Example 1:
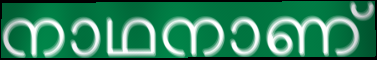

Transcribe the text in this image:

നാഥനാണ്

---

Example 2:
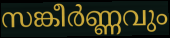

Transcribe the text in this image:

സങ്കീർണ്ണവും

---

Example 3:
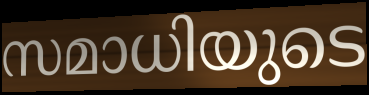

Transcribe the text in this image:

സമാധിയുടെ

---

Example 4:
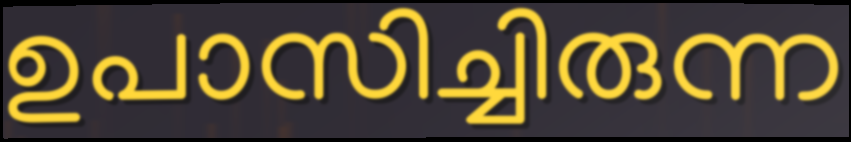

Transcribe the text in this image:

ഉപാസിച്ചിരുന്ന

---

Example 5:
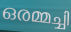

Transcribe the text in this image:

ഒരമ്മച്ചി